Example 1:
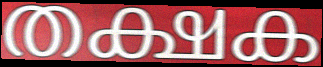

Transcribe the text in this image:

തക്ഷക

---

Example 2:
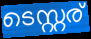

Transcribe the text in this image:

ടെസ്റ്റര്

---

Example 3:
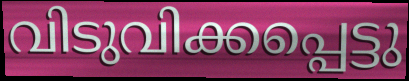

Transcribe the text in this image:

വിടുവിക്കപ്പെട്ടു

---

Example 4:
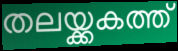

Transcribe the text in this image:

തലയ്ക്കകത്ത്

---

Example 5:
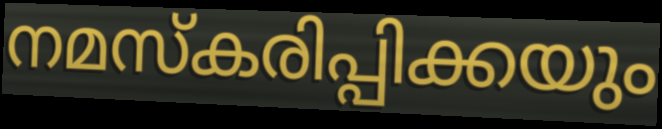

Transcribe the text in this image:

നമസ്കരിപ്പിക്കയും